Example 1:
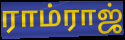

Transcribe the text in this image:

ராம்ராஜ்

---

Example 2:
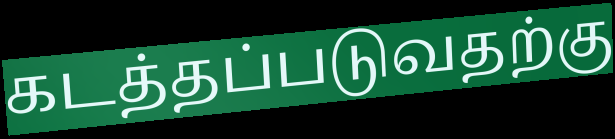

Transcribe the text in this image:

கடத்தப்படுவதற்கு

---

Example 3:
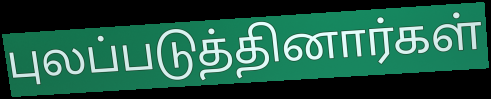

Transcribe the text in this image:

புலப்படுத்தினார்கள்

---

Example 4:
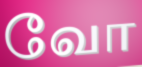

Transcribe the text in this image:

வோ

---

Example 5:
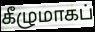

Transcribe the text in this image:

கீழுமாகப்